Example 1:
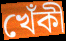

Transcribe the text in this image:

খেঁকী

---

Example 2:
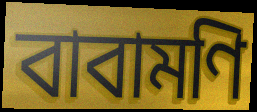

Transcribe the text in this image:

বাবামণি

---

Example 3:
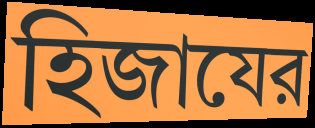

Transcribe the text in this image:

হিজাযের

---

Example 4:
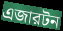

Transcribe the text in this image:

এজারটন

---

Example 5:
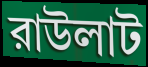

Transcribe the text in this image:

রাউলাট